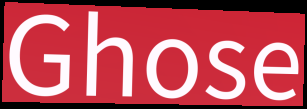
Ghose